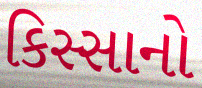
કિસ્સાનો